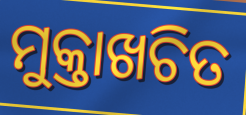
ମୁକ୍ତାଖଚିତ